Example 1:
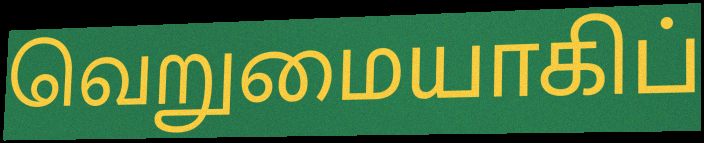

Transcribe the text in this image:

வெறுமையாகிப்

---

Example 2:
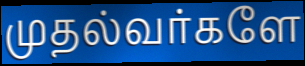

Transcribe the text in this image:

முதல்வர்களே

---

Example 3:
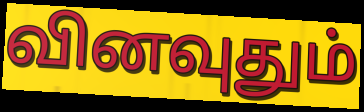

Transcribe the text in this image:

வினவுதும்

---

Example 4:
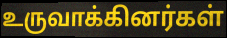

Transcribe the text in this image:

உருவாக்கினர்கள்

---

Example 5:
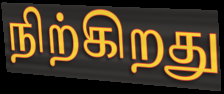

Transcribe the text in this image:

நிற்கிறது